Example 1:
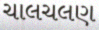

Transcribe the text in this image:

ચાલચલણ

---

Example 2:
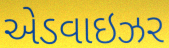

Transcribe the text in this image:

એડવાઇઝર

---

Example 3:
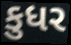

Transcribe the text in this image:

કુધર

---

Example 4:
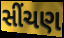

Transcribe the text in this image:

સીંચણ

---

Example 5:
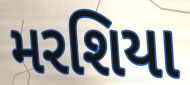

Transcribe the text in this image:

મરશિયા